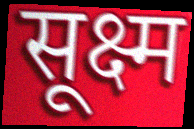
सूक्ष्म